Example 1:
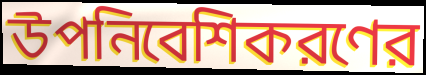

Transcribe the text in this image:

উপনিবেশিকরণের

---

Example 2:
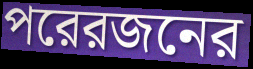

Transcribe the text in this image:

পরেরজনের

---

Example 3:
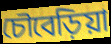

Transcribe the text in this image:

চৌবেড়িয়া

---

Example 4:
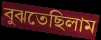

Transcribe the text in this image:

বুঝতেছিলাম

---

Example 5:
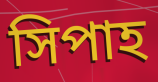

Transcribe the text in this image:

সিপাহ